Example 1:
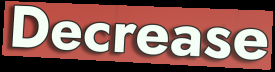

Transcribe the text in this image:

Decrease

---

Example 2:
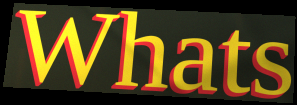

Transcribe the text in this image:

Whats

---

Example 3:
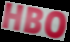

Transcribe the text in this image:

HBO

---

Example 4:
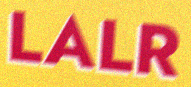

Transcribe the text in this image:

LALR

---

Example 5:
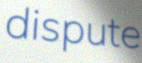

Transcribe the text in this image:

dispute